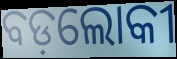
ବଡ଼ଲୋକୀ